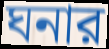
ঘনার